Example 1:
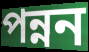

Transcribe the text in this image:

পন্নন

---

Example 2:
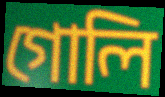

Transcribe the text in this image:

গোলি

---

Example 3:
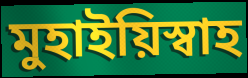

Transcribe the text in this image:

মুহাইয়িস্বাহ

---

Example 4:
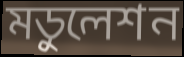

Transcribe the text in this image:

মডুলেশন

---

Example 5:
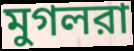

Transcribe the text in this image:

মুগলরা